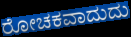
ರೋಚಕವಾದುದು